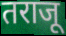
तराजू